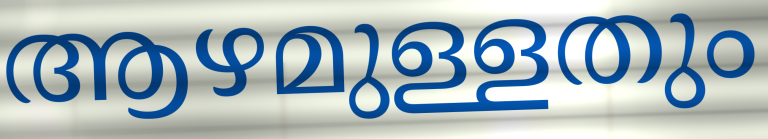
ആഴമുള്ളതും